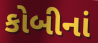
કોબીનાં